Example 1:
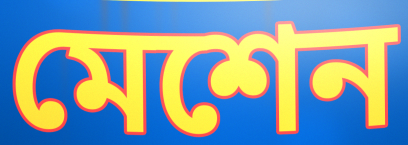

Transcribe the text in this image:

মেশেন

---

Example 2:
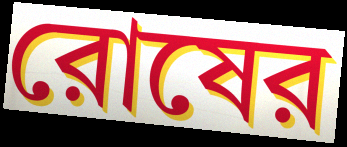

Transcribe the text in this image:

রোষের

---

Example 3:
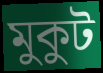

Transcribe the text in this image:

মুকুট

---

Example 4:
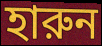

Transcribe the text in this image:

হারুন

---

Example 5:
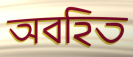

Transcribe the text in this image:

অবহিত